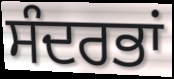
ਸੰਦਰਭਾਂ